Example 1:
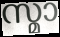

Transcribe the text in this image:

സ്മാ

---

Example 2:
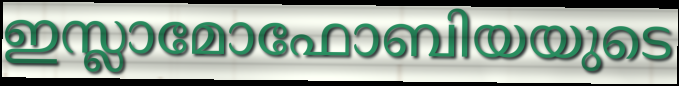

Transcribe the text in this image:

ഇസ്ലാമോഫോബിയയുടെ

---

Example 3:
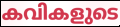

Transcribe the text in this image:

കവികളുടെ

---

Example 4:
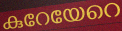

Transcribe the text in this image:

കുറേയേറെ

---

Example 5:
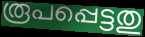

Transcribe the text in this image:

രൂപപ്പെട്ടതു